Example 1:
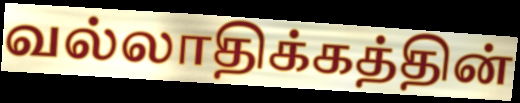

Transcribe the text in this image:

வல்லாதிக்கத்தின்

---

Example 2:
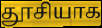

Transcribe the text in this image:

தூசியாக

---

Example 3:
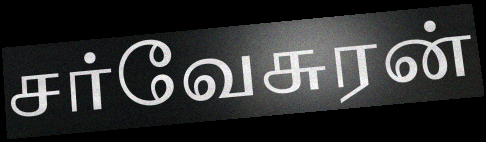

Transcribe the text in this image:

சர்வேசுரன்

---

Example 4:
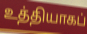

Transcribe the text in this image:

உத்தியாகப்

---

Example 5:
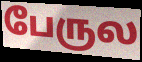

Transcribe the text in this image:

பேருல